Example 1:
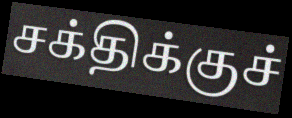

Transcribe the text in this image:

சக்திக்குச்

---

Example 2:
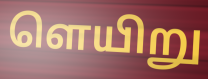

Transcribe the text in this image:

ளெயிறு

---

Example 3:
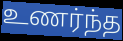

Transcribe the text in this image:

உணர்ந்த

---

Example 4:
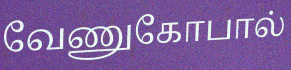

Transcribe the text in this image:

வேணுகோபால்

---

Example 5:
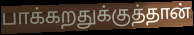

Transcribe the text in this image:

பாக்கறதுக்குத்தான்